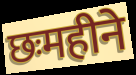
छःमहीने